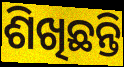
ଶିଖିଛନ୍ତି